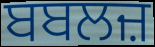
ਬਬਲਜ਼